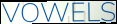
VOWELS